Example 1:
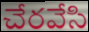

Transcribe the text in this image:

చేరవేసి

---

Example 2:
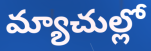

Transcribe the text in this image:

మ్యాచుల్లో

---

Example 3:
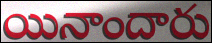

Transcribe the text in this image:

యినాందారు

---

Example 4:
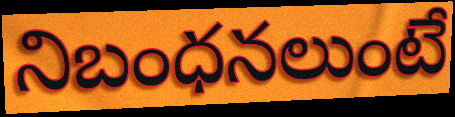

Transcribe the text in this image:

నిబంధనలుంటే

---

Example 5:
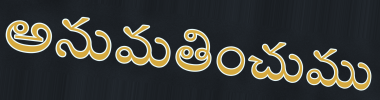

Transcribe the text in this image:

అనుమతించుము